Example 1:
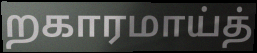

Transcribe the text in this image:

றகாரமாய்த்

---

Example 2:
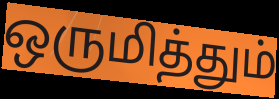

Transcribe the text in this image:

ஒருமித்தும்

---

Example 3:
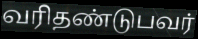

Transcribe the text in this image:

வரிதண்டுபவர்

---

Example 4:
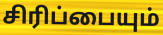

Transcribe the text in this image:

சிரிப்பையும்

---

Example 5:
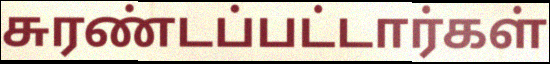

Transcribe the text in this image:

சுரண்டப்பட்டார்கள்